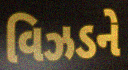
વિઝડને